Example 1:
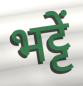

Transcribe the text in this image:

भट्टें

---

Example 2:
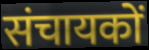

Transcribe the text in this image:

संचायकों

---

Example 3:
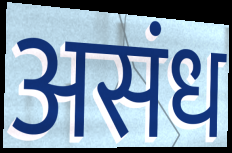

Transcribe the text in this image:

असंध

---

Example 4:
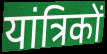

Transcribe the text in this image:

यांत्रिकों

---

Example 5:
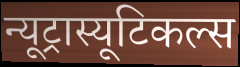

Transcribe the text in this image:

न्यूट्रास्यूटिकल्स